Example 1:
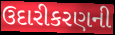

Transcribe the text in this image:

ઉદારીકરણની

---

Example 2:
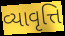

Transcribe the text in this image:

વ્યાવૃત્તિ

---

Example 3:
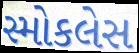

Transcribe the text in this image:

સ્મોકલેસ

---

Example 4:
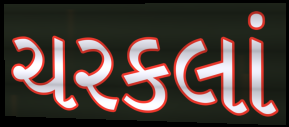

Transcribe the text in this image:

ચરકલાં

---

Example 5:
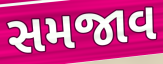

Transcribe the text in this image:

સમજાવ